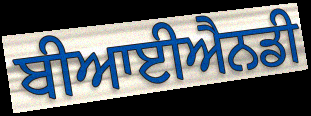
ਬੀਆਈਐਨਡੀ